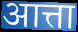
आत्ता